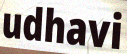
udhavi